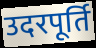
उदरपूर्ति